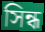
সিন্ধ